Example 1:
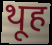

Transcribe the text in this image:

थूह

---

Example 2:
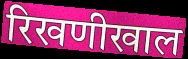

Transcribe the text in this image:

रिखणीखाल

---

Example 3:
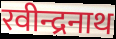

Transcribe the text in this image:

रवीन्‍द्रनाथ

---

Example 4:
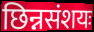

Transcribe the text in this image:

छिन्नसंशयः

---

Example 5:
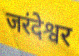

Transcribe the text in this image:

जरंदेश्वर